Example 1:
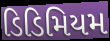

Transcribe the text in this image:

ડિડિમિયમ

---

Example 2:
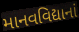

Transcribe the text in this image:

માનવવિદ્યાનાં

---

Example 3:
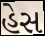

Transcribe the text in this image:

હેસ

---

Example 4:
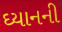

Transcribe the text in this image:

ઘ્યાનની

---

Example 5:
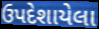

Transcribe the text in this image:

ઉપદેશાયેલા